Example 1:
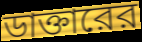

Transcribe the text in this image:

ডাক্তারের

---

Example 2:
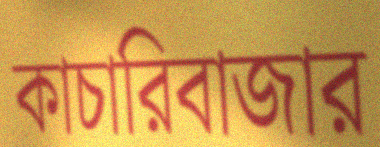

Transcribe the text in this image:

কাচারিবাজার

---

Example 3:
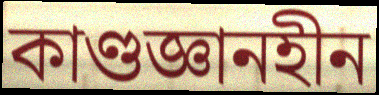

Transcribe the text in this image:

কাণ্ডজ্ঞানহীন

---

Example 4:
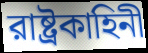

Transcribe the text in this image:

রাষ্ট্রকাহিনী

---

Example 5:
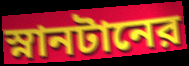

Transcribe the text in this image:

স্নানটানের